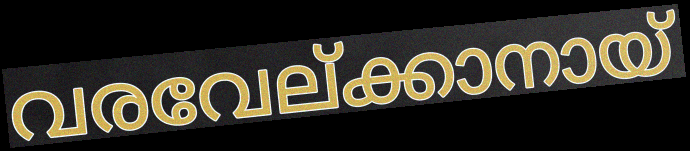
വരവേല്ക്കാനായ്